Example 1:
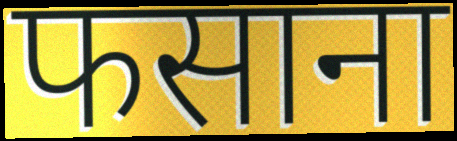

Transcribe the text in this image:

फसाना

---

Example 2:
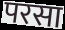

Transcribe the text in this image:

परसा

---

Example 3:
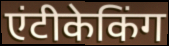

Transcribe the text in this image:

एंटीकेकिंग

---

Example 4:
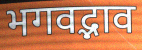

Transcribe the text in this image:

भगवद्भाव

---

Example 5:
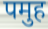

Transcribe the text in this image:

पमुह